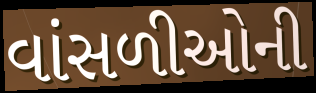
વાંસળીઓની